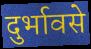
दुर्भावसे